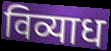
विव्याध